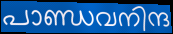
പാണ്ഡവനിന്ദ